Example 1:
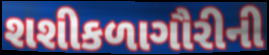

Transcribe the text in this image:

શશીકળાગૌરીની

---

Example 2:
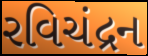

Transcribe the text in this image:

રવિચંદ્રન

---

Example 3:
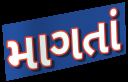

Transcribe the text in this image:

માગતાં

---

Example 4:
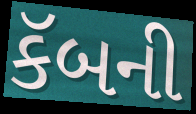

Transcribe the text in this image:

કૅબની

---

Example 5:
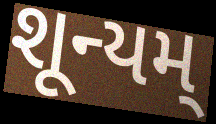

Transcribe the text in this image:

શૂન્યમ્